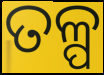
ତଳ୍ପ